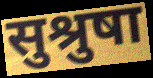
सुश्रुषा